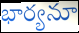
భార్యనూ